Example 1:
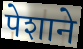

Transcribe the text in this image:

पेशाने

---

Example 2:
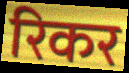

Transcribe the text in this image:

रिकर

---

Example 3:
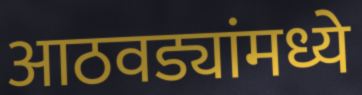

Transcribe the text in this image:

आठवड्यांमध्ये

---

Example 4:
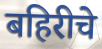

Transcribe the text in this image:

बहिरीचे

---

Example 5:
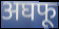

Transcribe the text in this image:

अघफू